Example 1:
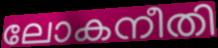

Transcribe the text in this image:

ലോകനീതി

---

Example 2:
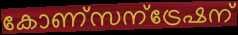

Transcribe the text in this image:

കോണ്സന്ട്രേഷന്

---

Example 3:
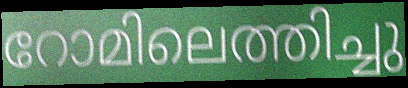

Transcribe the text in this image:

റോമിലെത്തിച്ചു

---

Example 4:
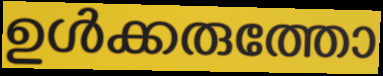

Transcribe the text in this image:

ഉൾക്കരുത്തോ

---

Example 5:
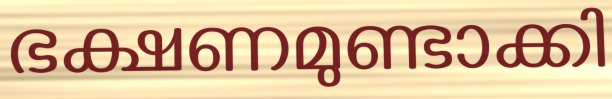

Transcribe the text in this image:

ഭക്ഷണമുണ്ടാക്കി